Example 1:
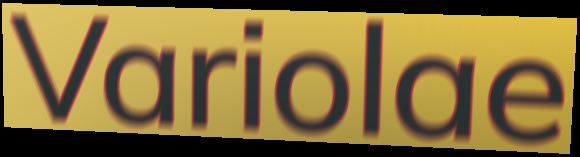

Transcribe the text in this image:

Variolae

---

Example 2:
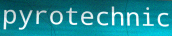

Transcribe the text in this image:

pyrotechnic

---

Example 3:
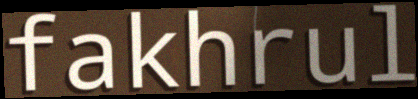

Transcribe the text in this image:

fakhrul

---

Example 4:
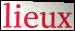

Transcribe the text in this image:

lieux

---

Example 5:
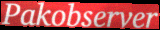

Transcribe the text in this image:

Pakobserver